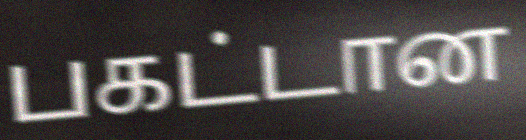
பகட்டான